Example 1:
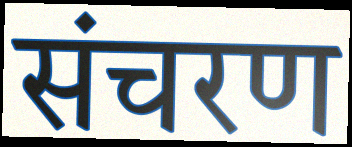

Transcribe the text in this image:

संचरण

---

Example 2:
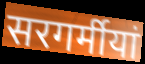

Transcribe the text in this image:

सरगर्मीयां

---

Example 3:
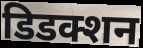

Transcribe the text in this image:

डिडक्शन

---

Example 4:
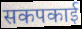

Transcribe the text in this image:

सकपकाई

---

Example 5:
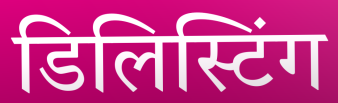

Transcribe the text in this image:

डिलिस्टिंग